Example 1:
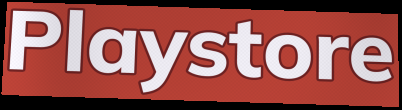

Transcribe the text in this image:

Playstore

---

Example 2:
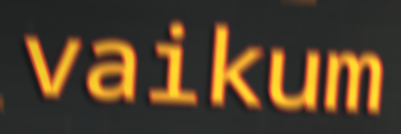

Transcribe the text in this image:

vaikum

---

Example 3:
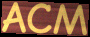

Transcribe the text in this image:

ACM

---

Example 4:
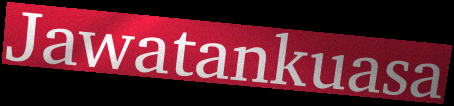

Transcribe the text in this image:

Jawatankuasa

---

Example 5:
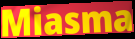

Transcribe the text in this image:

Miasma